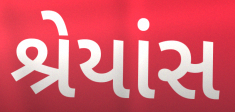
શ્રેયાંસ